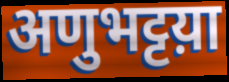
अणुभट्टय़ा